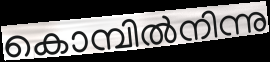
കൊമ്പിൽനിന്നു